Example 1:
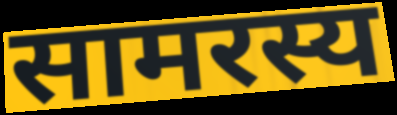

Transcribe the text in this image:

सामरस्य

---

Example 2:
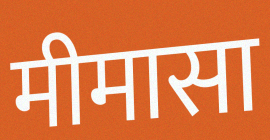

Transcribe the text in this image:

मीमासा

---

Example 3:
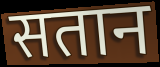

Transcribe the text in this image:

सतान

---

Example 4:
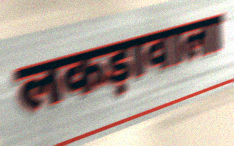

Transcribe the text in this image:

लकड़ावाला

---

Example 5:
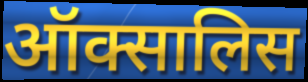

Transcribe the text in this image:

ऑक्सालिस